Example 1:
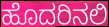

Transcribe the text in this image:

ಹೊದರಿನಲಿ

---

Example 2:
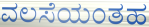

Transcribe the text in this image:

ವಲಸೆಯಂತಹ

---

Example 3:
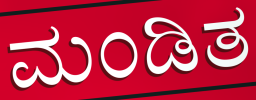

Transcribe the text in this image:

ಮಂಡಿತ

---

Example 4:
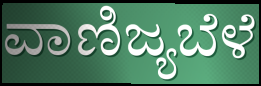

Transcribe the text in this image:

ವಾಣಿಜ್ಯಬೆಳೆ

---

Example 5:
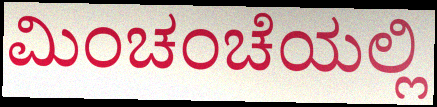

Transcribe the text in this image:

ಮಿಂಚಂಚೆಯಲ್ಲಿ